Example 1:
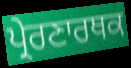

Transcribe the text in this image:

ਪ੍ਰੇਰਣਾਰਥਕ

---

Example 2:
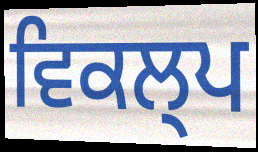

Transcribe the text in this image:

ਵਿਕਲ੍ਪ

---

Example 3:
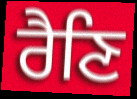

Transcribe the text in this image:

ਰੈਣਿ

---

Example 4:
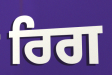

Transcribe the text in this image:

ਰਿਗ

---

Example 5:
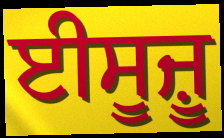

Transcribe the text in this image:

ਈਸੂਜ਼ੂ